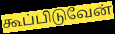
கூப்பிடுவேன்